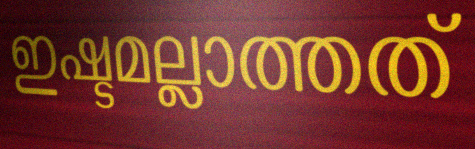
ഇഷ്ടമല്ലാത്തത്